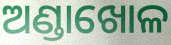
ଅଣ୍ଡାଖୋଳ